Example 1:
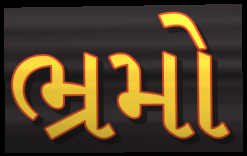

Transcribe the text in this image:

ભ્રમો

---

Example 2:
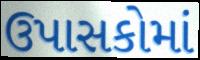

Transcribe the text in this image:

ઉપાસકોમાં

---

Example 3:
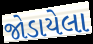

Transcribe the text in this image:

જોડાયેલા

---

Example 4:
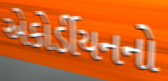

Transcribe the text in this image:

એકોર્ડીયનનો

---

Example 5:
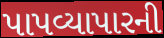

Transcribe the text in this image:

પાપવ્યાપારની